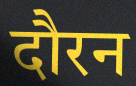
दौरन